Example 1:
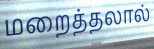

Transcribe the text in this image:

மறைத்தலால்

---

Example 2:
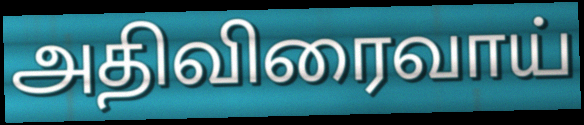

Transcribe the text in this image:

அதிவிரைவாய்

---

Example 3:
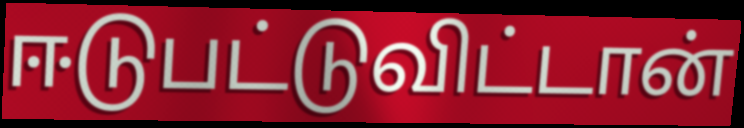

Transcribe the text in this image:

ஈடுபட்டுவிட்டான்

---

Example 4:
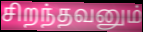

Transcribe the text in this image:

சிறந்தவனும்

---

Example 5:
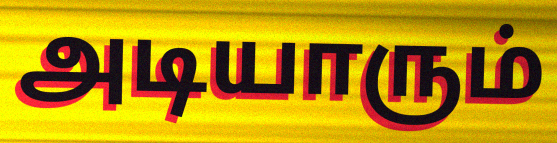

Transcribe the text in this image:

அடியாரும்